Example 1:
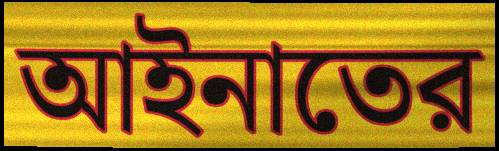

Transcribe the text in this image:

আইনাতের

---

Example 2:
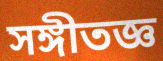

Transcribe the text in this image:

সঙ্গীতজ্ঞ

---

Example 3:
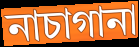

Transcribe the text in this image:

নাচাগানা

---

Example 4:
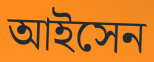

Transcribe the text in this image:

আইসেন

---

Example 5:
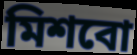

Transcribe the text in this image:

মিশবো